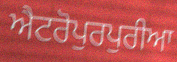
ਐਟਰੋਪੁਰਪੁਰੀਆ